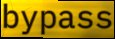
bypass